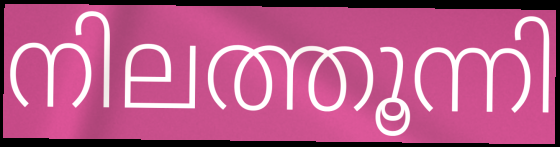
നിലത്തൂന്നി